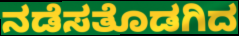
ನಡೆಸತೊಡಗಿದ